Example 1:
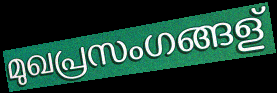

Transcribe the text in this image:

മുഖപ്രസംഗങ്ങള്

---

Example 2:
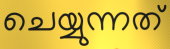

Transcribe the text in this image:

ചെയ്യുന്നത്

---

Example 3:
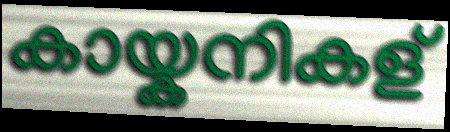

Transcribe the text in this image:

കായ്കനികള്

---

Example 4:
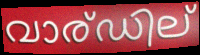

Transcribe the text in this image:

വാര്ഡില്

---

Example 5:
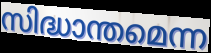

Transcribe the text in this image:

സിദ്ധാന്തമെന്ന